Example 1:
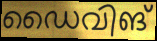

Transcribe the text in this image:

ഡൈവിങ്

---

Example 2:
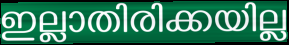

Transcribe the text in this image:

ഇല്ലാതിരിക്കയില്ല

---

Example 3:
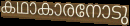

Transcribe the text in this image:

കഥാകാരനോടു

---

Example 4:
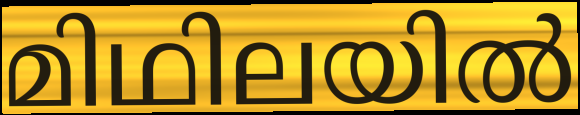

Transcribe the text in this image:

മിഥിലയിൽ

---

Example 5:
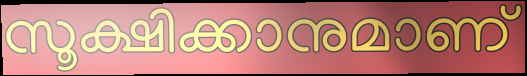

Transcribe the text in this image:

സൂക്ഷിക്കാനുമാണ്